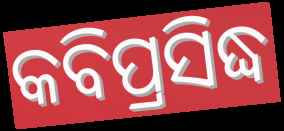
କବିପ୍ରସିଦ୍ଧ